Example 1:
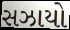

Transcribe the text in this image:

સઝાયો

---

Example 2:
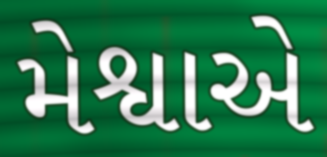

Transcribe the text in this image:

મેશ્વાએ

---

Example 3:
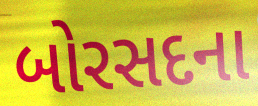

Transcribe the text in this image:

બોરસદના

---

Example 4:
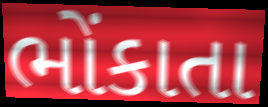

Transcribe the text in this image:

ભોંકાતા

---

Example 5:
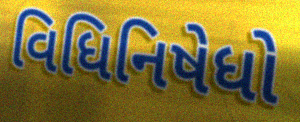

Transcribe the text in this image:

વિધિનિષેધો